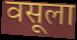
वसूला